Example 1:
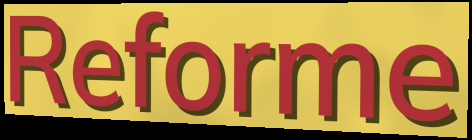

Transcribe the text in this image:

Reforme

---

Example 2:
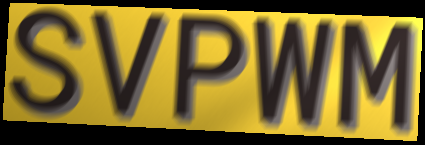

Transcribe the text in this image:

SVPWM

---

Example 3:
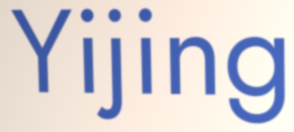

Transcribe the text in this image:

Yijing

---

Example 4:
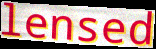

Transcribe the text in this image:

lensed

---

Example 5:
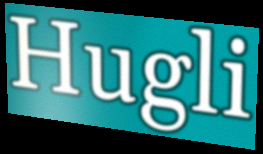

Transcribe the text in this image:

Hugli